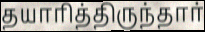
தயாரித்திருந்தார்